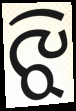
ଝି